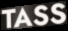
TASS